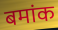
बमांक